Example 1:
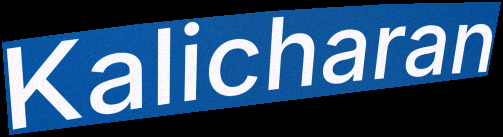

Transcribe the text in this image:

Kalicharan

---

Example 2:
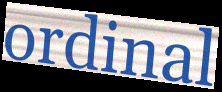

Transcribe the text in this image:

ordinal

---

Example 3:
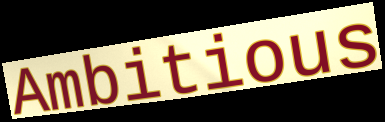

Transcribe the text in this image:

Ambitious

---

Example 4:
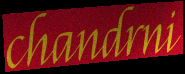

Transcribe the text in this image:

chandrni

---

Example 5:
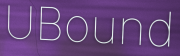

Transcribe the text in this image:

UBound